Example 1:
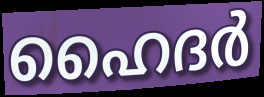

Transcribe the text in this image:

ഹൈദർ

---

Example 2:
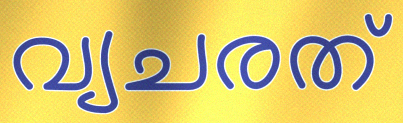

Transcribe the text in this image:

വ്യചരത്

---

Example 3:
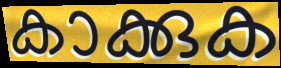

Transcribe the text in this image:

കാക്കുക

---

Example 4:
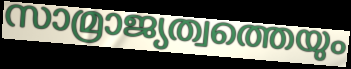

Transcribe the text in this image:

സാമ്രാജ്യത്വത്തെയും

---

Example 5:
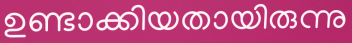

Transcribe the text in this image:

ഉണ്ടാക്കിയതായിരുന്നു